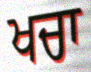
ਖਚਾ